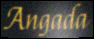
Angada